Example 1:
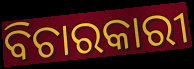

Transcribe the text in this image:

ବିଚାରକାରୀ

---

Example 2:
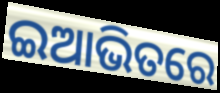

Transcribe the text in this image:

ଇଆଭିତରେ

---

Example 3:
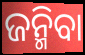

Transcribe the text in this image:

ଜନ୍ମିବା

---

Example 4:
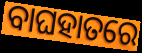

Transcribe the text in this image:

ବାଘହାତରେ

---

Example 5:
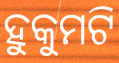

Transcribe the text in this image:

ହୁକୁମଟି